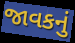
જાવકનું